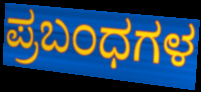
ಪ್ರಬಂಧಗಳ